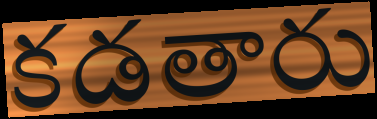
కడతారు